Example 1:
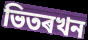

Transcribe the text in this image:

ভিতৰখন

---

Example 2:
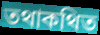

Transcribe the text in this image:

তথাকথিত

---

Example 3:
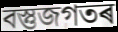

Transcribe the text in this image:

বস্তুজগতৰ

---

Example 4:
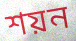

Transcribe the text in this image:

শয়ন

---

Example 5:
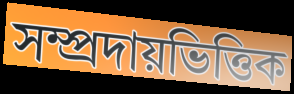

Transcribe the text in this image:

সম্প্ৰদায়ভিত্তিক